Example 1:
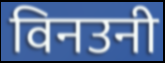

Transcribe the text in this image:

विनउनी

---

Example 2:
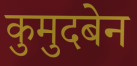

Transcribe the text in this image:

कुमुदबेन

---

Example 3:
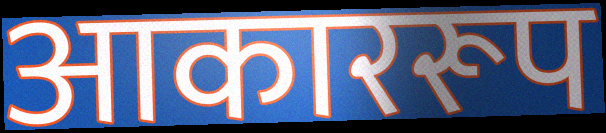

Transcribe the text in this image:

आकाररूप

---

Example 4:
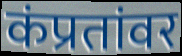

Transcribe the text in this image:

कंप्रतांवर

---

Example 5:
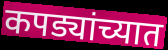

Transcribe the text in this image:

कपड्यांच्यात